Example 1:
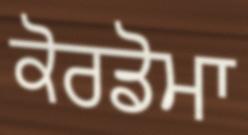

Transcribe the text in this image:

ਕੋਰਡੋਮਾ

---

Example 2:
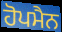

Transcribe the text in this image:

ਹੋਪਮੈਨ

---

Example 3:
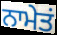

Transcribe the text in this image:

ਨਾਮੇਤਂ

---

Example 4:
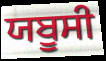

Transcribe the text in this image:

ਯਬੂਸੀ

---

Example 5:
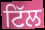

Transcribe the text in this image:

ਟਿੱਲ